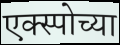
एक्स्पोच्या